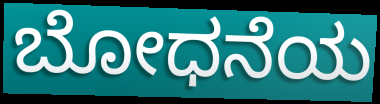
ಬೋಧನೆಯ